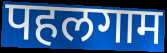
पहलगाम